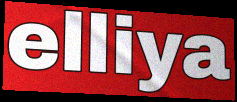
elliya